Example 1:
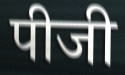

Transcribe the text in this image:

पीजी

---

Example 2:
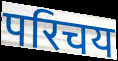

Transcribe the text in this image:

परिचय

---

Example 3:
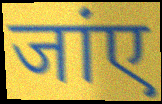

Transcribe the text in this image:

जांए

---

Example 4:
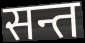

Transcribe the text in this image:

सन्त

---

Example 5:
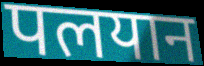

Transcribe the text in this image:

पलयान